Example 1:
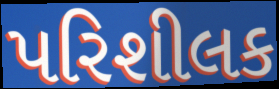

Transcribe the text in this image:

પરિશીલક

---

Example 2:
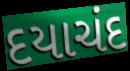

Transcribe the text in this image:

દયાચંદ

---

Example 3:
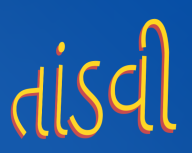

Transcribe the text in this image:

તાંડવી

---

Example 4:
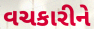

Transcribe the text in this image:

વચકારીને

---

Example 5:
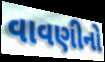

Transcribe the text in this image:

વાવણીનો